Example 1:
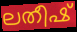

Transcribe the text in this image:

ലതീഷ്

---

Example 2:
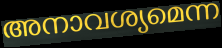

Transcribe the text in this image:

അനാവശ്യമെന്ന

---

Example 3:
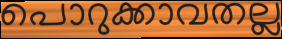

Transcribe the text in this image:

പൊറുക്കാവതല്ല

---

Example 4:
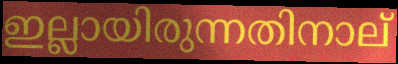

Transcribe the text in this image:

ഇല്ലായിരുന്നതിനാല്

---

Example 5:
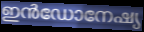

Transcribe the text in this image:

ഇൻഡോനേഷ്യ